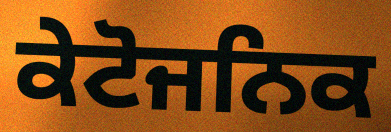
ਕੇਟੋਜਨਿਕ